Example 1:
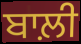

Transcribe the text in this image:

ਬਾਲ਼ੀ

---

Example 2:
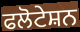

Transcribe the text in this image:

ਫਲੋਟੇਸ਼ਨ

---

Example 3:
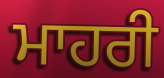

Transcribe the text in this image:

ਮਾਹਰੀ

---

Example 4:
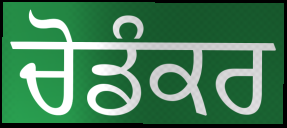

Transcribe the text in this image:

ਚੋਡੰਕਰ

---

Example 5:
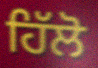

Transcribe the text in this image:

ਹਿੱਲੋ